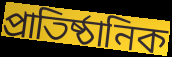
প্রাতিষ্ঠানিক